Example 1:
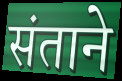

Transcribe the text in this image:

संताने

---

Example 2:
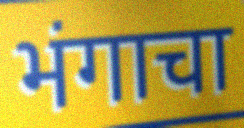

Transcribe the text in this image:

भंगाचा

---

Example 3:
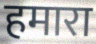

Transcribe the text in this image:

हमारा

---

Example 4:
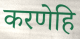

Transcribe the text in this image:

करणेहि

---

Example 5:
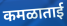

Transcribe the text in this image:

कमळाताई